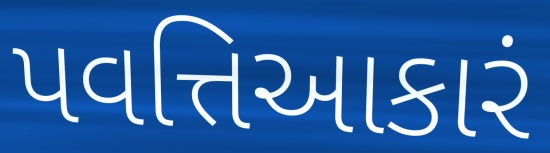
પવત્તિઆકારં